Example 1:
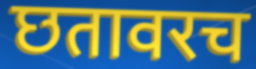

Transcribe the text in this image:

छतावरच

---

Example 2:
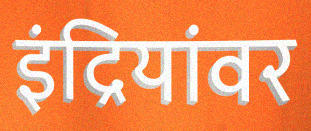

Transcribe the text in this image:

इंद्रियांवर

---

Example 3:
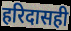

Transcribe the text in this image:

हरिदासही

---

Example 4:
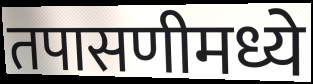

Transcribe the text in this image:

तपासणीमध्ये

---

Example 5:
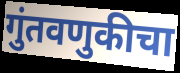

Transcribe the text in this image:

गुंतवणुकीचा